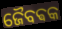
ଜୈବଵକ